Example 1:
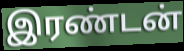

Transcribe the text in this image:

இரண்டன்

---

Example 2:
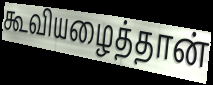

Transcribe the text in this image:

கூவியழைத்தான்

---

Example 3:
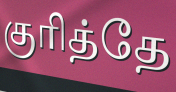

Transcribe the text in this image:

குரித்தே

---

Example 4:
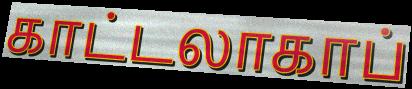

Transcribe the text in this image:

காட்டலாகாப்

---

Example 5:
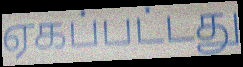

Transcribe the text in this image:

ஏகப்பட்டது